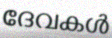
ദേവകൾ